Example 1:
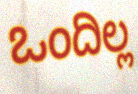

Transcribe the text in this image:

ಒಂದಿಲ್ಲ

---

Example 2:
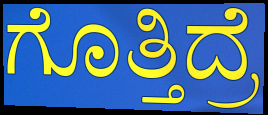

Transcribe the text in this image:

ಗೊತ್ತಿದ್ರೆ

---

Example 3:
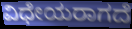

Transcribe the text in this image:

ವಿಧೇಯರಾಗದೆ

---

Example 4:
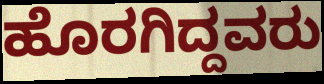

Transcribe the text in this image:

ಹೊರಗಿದ್ದವರು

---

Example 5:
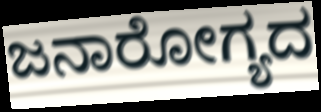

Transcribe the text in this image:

ಜನಾರೋಗ್ಯದ